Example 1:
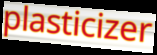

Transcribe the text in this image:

plasticizer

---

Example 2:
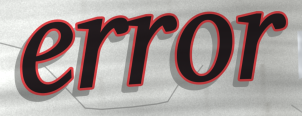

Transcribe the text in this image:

error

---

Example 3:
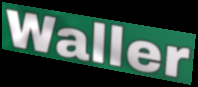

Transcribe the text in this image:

Waller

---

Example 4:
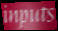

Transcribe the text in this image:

inputs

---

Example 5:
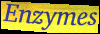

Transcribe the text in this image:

Enzymes